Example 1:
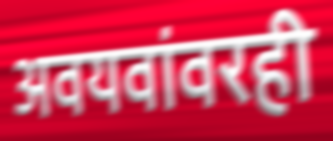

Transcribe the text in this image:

अवयवांवरही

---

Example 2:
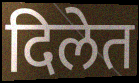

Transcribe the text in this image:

दिलेत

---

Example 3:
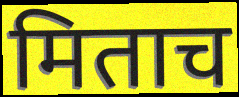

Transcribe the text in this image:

मिताच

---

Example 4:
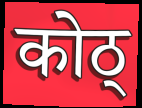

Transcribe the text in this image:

कोठ्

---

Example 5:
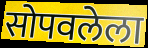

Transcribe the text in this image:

सोपवलेला